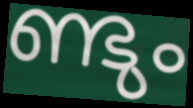
ണ്ടും